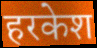
हरकेश